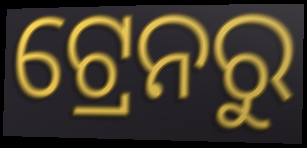
ଟ୍ରେନରୁ